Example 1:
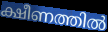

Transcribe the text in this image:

ക്ഷീണത്തിൽ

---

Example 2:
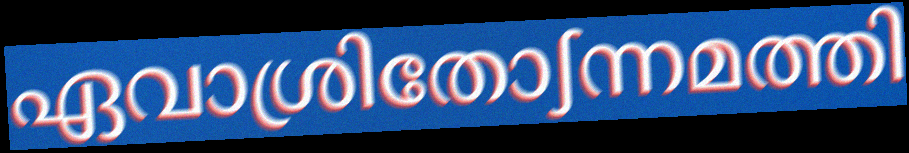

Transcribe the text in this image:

ഏവാശ്രിതോഽന്നമത്തി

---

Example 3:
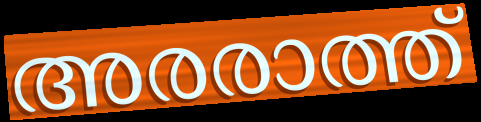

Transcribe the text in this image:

അരരാത്ത്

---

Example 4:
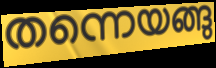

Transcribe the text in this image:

തന്നെയങ്ങു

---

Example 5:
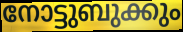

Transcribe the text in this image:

നോട്ടുബുക്കും